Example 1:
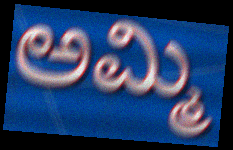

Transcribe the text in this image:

ಅಮ್ಮಿ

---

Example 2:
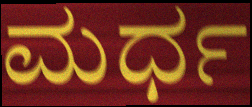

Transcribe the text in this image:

ಮರ್ಧ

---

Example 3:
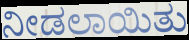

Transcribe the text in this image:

ನೀಡಲಾಯಿತು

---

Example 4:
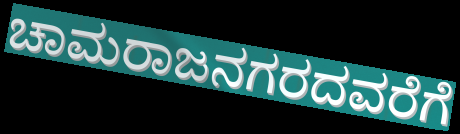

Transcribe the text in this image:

ಚಾಮರಾಜನಗರದವರೆಗೆ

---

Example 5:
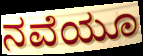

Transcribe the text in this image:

ನವೆಯೂ